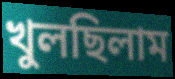
খুলছিলাম